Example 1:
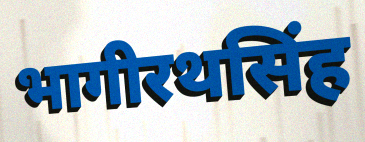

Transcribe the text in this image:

भागीरथसिंह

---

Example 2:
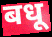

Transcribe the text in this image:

बधू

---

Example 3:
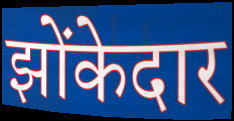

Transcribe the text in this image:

झोंकेदार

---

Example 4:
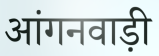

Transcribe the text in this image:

आंगनवाड़ी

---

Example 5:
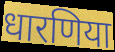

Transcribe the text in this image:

धारणिया